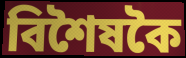
বিশৈষকৈ